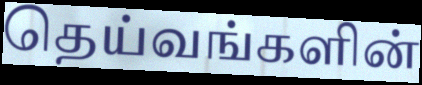
தெய்வங்களின்